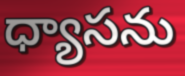
ధ్యాసను